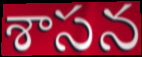
శాసన